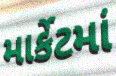
માર્કેટમાં